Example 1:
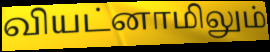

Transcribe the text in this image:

வியட்னாமிலும்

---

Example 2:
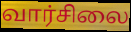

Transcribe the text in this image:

வார்சிலை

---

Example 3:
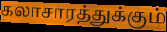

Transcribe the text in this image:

கலாசாரத்துக்கும்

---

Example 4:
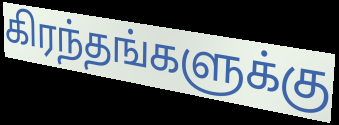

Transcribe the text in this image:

கிரந்தங்களுக்கு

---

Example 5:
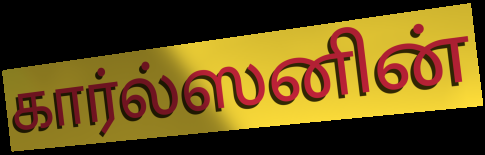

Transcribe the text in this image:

கார்ல்ஸனின்